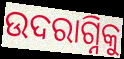
ଉଦରାଗ୍ନିକୁ